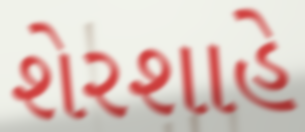
શેરશાહે